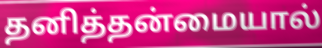
தனித்தன்மையால்